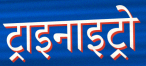
ट्राइनाइट्रो